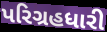
પરિગ્રહધારી